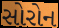
સોરોન